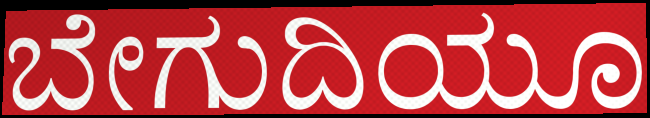
ಬೇಗುದಿಯೂ